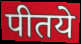
पीतये